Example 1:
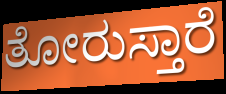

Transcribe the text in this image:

ತೋರುಸ್ತಾರೆ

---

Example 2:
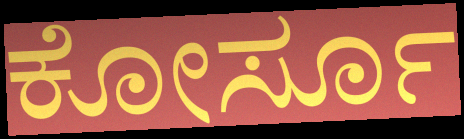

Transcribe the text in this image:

ಕೋರ್ಸೂ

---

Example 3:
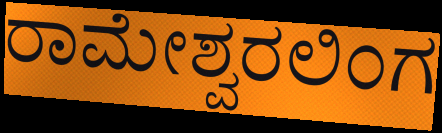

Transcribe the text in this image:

ರಾಮೇಶ್ವರಲಿಂಗ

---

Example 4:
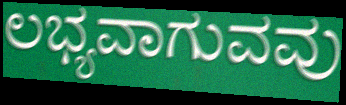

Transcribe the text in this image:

ಲಭ್ಯವಾಗುವವು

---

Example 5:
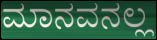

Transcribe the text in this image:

ಮಾನವನಲ್ಲ